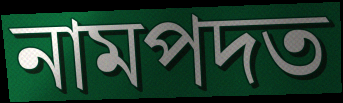
নামপদত